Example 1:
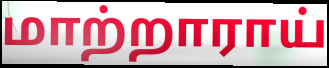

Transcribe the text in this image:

மாற்றாராய்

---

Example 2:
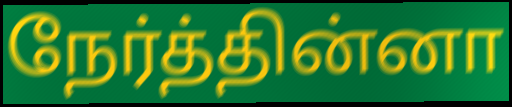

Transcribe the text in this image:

நேர்த்தின்னா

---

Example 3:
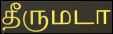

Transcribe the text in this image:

தீருமடா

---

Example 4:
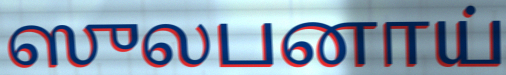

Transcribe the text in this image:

ஸுலபனாய்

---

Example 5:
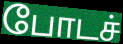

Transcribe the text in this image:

போடச்